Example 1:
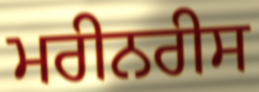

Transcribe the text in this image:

ਮਰੀਨਰੀਸ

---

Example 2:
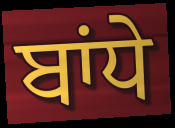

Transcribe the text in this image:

ਬਾਂਧੇ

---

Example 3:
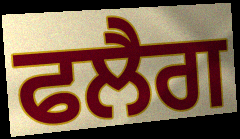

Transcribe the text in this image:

ਫਲੈਗ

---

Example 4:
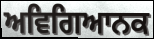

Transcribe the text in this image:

ਅਵਿਗਿਆਨਕ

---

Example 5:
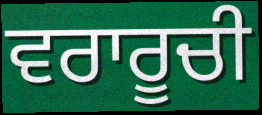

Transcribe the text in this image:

ਵਰਾਰੂਚੀ